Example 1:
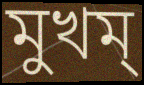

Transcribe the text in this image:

মুখম্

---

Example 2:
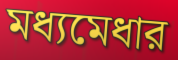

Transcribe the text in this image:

মধ্যমেধার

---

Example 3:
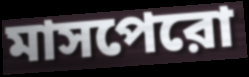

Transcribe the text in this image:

মাসপেরো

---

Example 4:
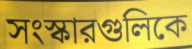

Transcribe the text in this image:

সংস্কারগুলিকে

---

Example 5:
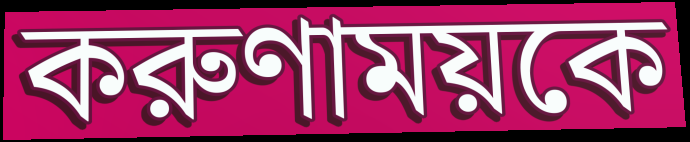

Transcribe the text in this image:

করুণাময়কে